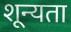
शून्‍यता